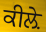
ਕੀਲ਼ੇ